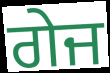
ਗੇਜ